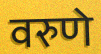
वरुणे